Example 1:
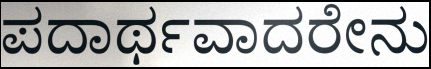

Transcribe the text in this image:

ಪದಾರ್ಥವಾದರೇನು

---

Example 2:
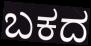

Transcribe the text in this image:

ಬಕದ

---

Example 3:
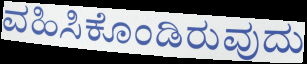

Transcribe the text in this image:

ವಹಿಸಿಕೊಂಡಿರುವುದು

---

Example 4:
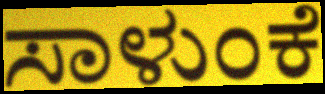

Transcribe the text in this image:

ಸಾಳುಂಕೆ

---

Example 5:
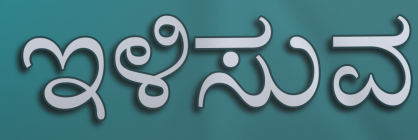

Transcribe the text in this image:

ಇಳಿಸುವ